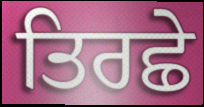
ਤਿਰਛੇ